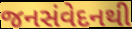
જનસંવેદનથી